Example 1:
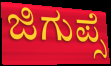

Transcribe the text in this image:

ಜಿಗುಪ್ಸೆ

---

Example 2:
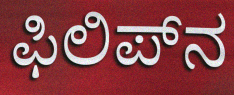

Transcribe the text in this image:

ಫಿಲಿಪ್‌ನ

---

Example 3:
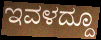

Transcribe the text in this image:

ಇವಳದ್ದೂ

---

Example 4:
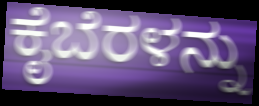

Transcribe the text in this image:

ಕೈಬೆರಳನ್ನು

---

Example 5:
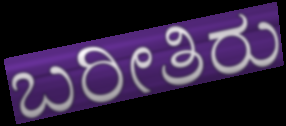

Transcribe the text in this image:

ಬರೀತಿರು